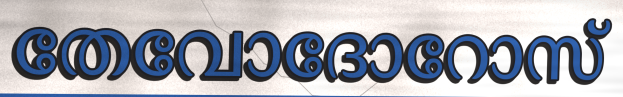
തേവോദോറോസ്